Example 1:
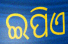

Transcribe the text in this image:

ଇପିଏ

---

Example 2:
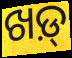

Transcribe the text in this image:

ଖଡ଼୍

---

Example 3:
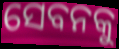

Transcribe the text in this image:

ସେବନକୁ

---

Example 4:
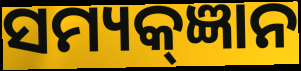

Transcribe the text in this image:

ସମ୍ୟକ୍ଜ୍ଞାନ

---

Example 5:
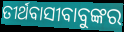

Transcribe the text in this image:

ତୀର୍ଥବାସୀବାବୁଙ୍କର